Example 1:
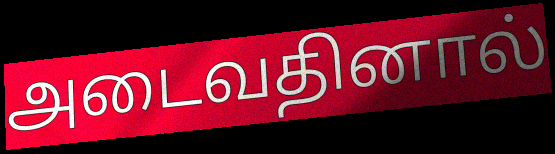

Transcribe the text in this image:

அடைவதினால்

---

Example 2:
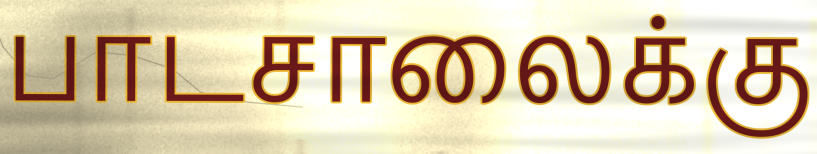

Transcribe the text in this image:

பாடசாலைக்கு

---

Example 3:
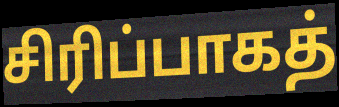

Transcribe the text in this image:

சிரிப்பாகத்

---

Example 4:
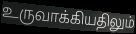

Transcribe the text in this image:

உருவாக்கியதிலும்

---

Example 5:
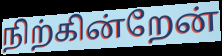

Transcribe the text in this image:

நிற்கின்றேன்